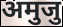
अमुजु